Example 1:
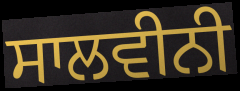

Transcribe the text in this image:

ਸਾਲਵੀਨੀ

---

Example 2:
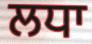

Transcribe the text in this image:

ਲਧਾ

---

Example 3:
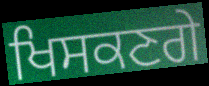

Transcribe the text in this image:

ਖਿਸਕਣਗੇ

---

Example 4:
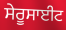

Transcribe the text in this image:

ਸੇਰੂਸਾਈਟ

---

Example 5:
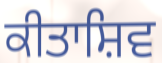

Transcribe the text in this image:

ਕੀਤਾਸ਼ਿਵ